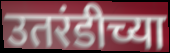
उतरंडीच्या